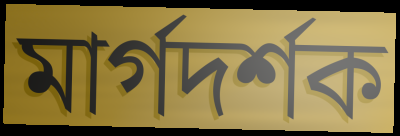
মার্গদর্শক